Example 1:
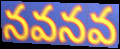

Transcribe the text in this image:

నవనవ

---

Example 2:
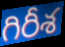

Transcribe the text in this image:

గిరీశ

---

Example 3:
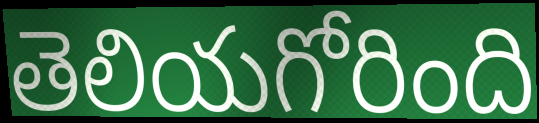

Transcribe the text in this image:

తెలియగోరింది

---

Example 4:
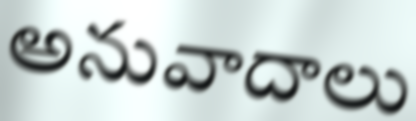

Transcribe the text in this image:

అనువాదాలు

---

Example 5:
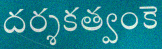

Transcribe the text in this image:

దర్శకత్వంకె